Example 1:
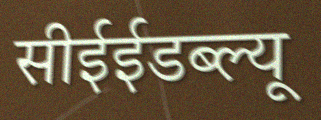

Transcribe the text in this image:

सीईईडब्ल्यू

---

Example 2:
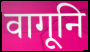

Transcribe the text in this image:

वागूनि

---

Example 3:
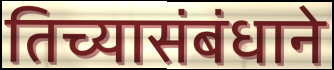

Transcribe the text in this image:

तिच्यासंबंधाने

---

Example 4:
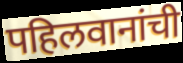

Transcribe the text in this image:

पहिलवानांची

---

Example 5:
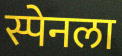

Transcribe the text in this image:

स्पेनला